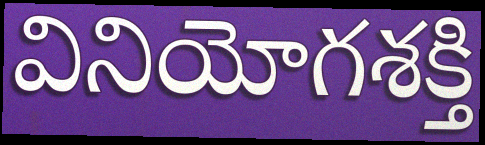
వినియోగశక్తి